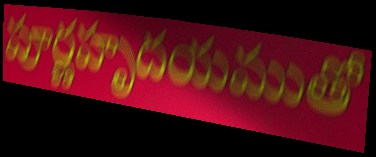
పూర్ణహృదయముతో